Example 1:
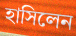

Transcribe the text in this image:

হাসিলেন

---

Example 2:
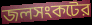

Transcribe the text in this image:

জলসংকটের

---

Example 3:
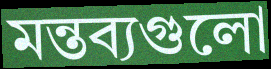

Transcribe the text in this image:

মন্তব্যগুলো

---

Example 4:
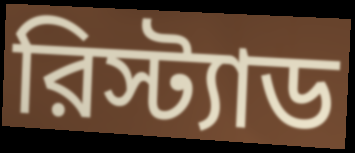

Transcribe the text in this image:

রিস্ট্যাড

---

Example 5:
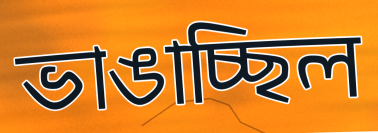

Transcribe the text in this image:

ভাঙাচ্ছিল